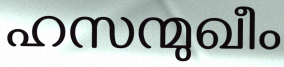
ഹസന്മുഖീം